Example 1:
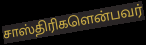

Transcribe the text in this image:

சாஸ்திரிகளென்பவர்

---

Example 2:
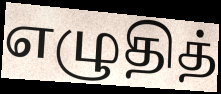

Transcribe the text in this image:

எழுதித்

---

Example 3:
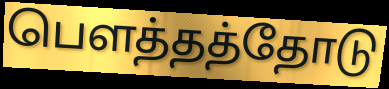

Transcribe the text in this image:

பௌத்தத்தோடு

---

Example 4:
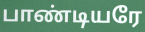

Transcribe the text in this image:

பாண்டியரே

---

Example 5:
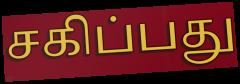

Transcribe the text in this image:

சகிப்பது